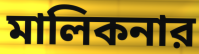
মালিকনার